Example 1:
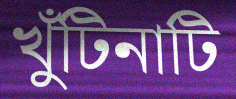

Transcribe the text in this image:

খুঁটিনাটি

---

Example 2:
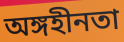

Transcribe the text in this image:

অঙ্গহীনতা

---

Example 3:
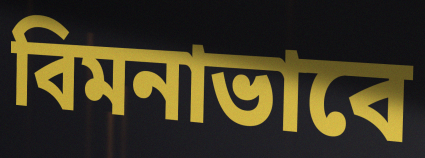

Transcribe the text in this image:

বিমনাভাবে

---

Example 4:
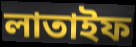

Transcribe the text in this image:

লাতাইফ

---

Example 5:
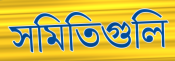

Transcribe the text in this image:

সমিতিগুলি